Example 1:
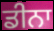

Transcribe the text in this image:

ਡੀਨਾ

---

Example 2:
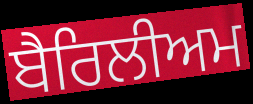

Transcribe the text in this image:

ਬੈਰਿਲੀਅਮ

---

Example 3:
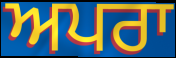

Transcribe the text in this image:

ਅਪਰਾ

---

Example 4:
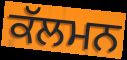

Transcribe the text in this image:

ਕੱਲਮਨ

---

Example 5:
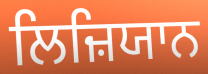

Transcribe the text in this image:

ਲਿਜ਼ਿਯਾਨ